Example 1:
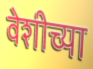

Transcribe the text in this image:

वेशीच्या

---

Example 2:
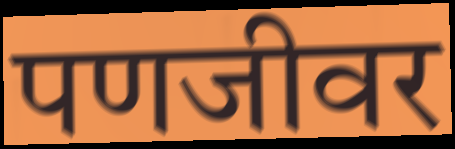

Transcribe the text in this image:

पणजीवर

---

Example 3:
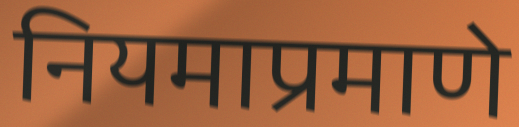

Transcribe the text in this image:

नियमाप्रमाणे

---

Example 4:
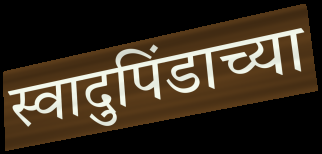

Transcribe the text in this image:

स्वादुपिंडाच्या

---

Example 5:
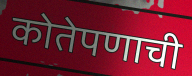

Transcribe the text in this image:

कोतेपणाची